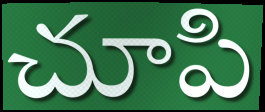
చూపి